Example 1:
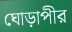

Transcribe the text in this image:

ঘোড়াপীর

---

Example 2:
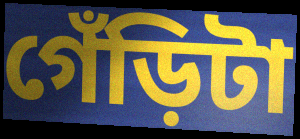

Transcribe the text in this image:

গেঁড়িটা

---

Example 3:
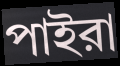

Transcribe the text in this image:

পাইরা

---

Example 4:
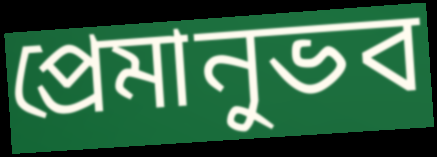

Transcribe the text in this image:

প্রেমানুভব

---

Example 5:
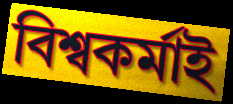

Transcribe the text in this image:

বিশ্বকর্মাই